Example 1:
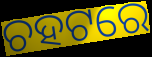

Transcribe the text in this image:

ଚହଟରେ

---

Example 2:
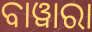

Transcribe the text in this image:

ବାୱାରା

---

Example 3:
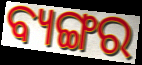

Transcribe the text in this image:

ବ୍ୟଙ୍ଗର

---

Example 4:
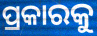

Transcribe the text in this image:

ପ୍ରକାରକୁ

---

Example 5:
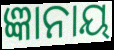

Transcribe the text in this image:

ଜ୍ଞାନାୟ